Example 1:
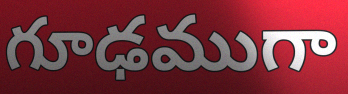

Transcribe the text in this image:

గూఢముగా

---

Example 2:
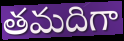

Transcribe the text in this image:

తమదిగా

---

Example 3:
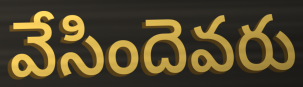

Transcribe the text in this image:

వేసిందెవరు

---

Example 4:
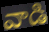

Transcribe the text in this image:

వాడి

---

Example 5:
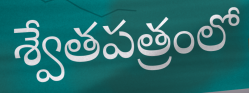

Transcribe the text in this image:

శ్వేతపత్రంలో